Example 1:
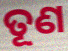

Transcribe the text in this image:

ତୂଣ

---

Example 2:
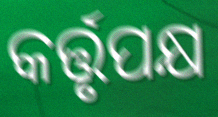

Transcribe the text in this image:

କର୍ତ୍ତୃପକ୍ଷ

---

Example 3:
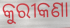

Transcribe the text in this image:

କୁରୀକଣା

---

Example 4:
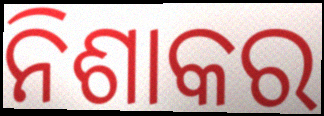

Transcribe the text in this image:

ନିଶାକର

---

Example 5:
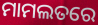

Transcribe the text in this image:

ମାମଲତରେ